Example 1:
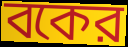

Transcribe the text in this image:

বকের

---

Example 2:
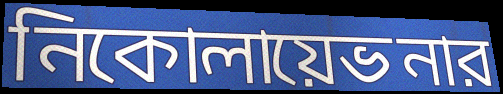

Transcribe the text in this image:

নিকোলায়েভনার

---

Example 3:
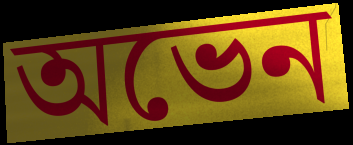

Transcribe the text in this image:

অভেন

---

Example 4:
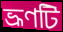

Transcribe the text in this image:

ভ্রূণটি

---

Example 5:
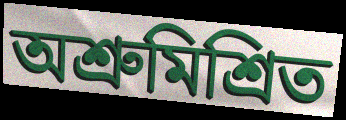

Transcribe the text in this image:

অশ্রুমিশ্রিত